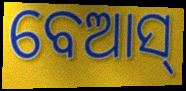
ବେଆସ୍